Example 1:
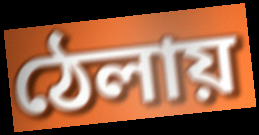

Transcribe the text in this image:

ঠেলায়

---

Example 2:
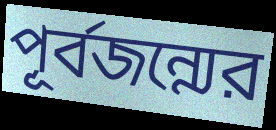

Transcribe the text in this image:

পূর্বজন্মের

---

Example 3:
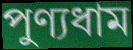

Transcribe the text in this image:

পুণ্যধাম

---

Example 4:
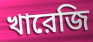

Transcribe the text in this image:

খারেজি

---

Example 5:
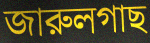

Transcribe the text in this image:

জারুলগাছ